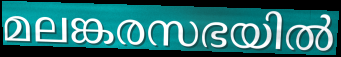
മലങ്കരസഭയിൽ